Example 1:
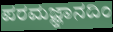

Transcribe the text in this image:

ಪರಮಜ್ಞಾನದಿಂ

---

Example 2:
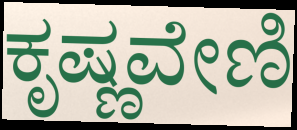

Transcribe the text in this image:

ಕೃಷ್ಣವೇಣಿ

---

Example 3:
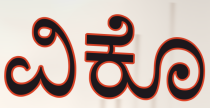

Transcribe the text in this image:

ವಿಕೊ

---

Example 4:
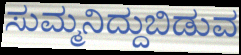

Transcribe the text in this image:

ಸುಮ್ಮನಿದ್ದುಬಿಡುವ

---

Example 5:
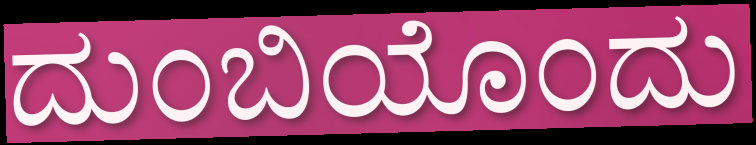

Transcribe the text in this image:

ದುಂಬಿಯೊಂದು